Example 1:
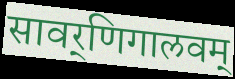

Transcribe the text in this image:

सावर्णिगालवम्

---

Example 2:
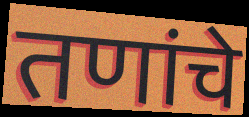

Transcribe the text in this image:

तणांचे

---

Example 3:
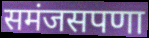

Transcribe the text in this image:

समंजसपणा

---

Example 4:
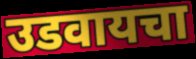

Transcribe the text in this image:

उडवायचा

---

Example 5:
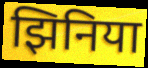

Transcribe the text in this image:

झिनिया